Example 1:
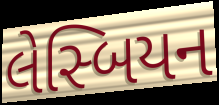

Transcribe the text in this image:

લેસ્બિયન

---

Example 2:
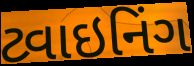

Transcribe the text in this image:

ટ્વાઇનિંગ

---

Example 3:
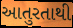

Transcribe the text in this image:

આતુરતાથી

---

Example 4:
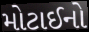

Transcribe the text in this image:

મોટાઈનો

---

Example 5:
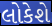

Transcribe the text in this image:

લોકેશે